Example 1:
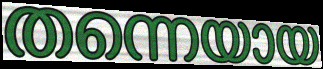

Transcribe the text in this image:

തന്നെയായ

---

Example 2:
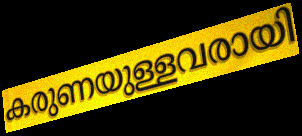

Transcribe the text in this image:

കരുണയുള്ളവരായി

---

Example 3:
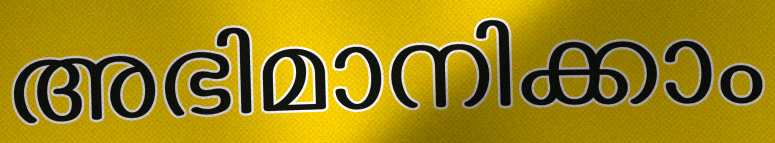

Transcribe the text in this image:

അഭിമാനിക്കാം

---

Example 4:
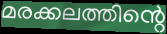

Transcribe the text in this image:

മരക്കലത്തിന്റെ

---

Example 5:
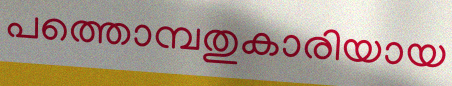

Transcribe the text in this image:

പത്തൊമ്പതുകാരിയായ